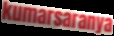
kumarsaranya